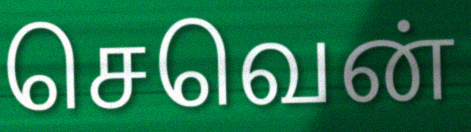
செவென்